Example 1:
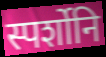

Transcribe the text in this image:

स्पर्शोनि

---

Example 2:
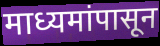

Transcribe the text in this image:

माध्यमांपासून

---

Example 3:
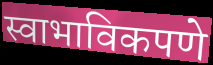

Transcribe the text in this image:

स्वाभाविकपणे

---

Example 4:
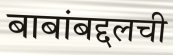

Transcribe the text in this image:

बाबांबद्दलची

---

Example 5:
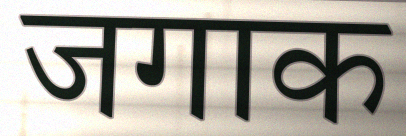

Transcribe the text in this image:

जगाक